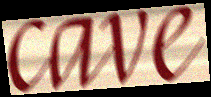
cave